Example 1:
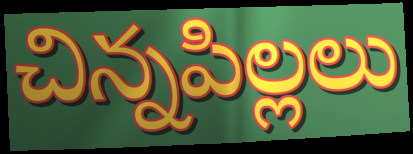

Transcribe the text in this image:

చిన్నపిల్లలు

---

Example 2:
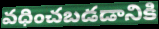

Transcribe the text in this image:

వధించబడడానికి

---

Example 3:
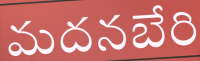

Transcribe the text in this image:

మదనబేరి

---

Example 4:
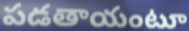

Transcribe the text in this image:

పడతాయంటూ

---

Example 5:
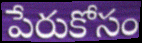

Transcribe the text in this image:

పేరుకోసం